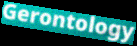
Gerontology